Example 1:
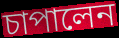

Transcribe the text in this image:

চাপালেন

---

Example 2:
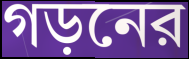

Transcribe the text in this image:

গড়নের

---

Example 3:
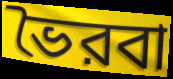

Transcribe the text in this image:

ভৈরবা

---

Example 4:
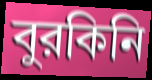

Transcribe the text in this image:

বুরকিনি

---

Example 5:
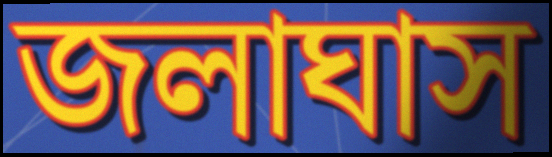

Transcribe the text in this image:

জলাঘাস